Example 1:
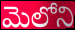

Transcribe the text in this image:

మెలోని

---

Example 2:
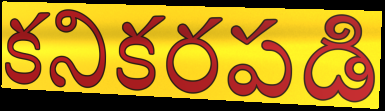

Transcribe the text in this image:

కనికరపడి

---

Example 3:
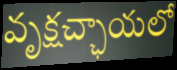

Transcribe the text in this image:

వృక్షచ్ఛాయలో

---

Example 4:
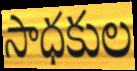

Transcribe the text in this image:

సాధకుల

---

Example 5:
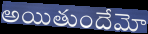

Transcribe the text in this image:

అయితుందేమో